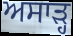
ਅਸਾੜ੍ਹ